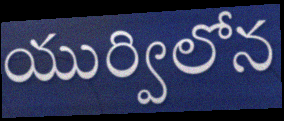
యుర్విలోన